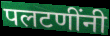
पलटणींनी